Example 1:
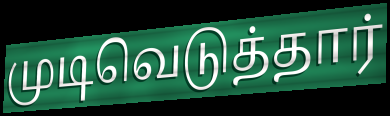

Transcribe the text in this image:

முடிவெடுத்தார்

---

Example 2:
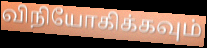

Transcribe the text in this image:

விநியோகிக்கவும்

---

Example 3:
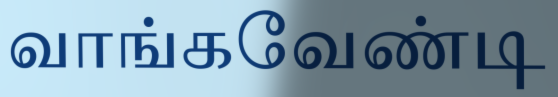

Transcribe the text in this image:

வாங்கவேண்டி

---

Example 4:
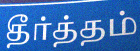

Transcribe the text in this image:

தீர்த்தம்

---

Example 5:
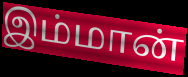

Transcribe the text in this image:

இம்மான்